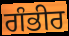
ਗੰਭੀਰ